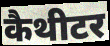
कैथीटर